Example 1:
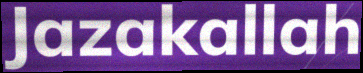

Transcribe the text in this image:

Jazakallah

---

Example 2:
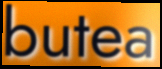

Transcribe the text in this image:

butea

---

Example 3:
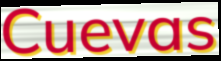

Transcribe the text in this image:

Cuevas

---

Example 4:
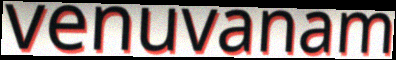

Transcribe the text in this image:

venuvanam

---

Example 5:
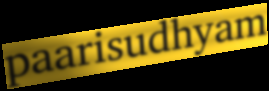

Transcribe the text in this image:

paarisudhyam